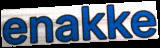
enakke